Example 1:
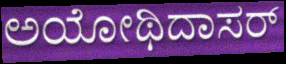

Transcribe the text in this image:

ಅಯೋಥಿದಾಸರ್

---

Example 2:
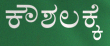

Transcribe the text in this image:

ಕೌಶಲಕ್ಕೆ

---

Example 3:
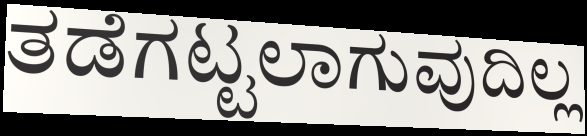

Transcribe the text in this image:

ತಡೆಗಟ್ಟಲಾಗುವುದಿಲ್ಲ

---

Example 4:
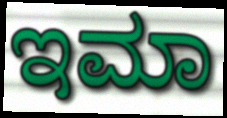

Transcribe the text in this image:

ಇಮಾ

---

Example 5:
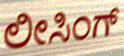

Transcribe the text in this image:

ಲೀಸಿಂಗ್